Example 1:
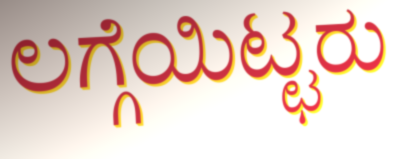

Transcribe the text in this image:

ಲಗ್ಗೆಯಿಟ್ಟರು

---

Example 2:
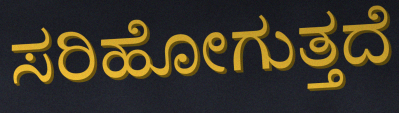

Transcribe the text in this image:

ಸರಿಹೋಗುತ್ತದೆ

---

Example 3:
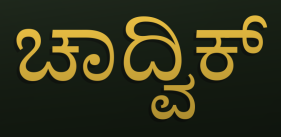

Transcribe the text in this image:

ಚಾದ್ವಿಕ್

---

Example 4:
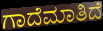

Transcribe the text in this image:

ಗಾದೆಮಾತಿದೆ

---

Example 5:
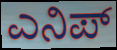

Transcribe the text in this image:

ಎನಿಪ್